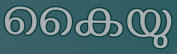
കൈയു